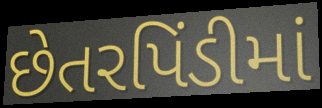
છેતરપિંડીમાં